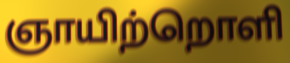
ஞாயிற்றொளி